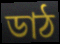
ডাঠ